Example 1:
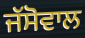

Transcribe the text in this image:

ਜੱਸੋਵਾਲ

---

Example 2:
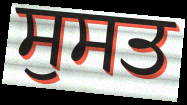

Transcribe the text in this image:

ਸੁਸਤ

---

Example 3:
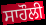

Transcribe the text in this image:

ਸਾਹੌਲੀ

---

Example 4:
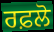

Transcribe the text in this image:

ਰਫ਼ਲੋ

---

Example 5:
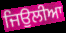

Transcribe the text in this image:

ਜਿਉਲੀਆ